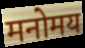
मनोमय